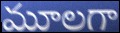
మూలగా